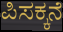
ಪಿಸಕ್ಕನೆ